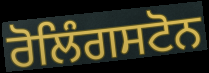
ਰੋਲਿੰਗਸਟੋਨ